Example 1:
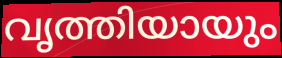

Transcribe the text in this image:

വൃത്തിയായും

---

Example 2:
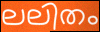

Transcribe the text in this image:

ലലിതം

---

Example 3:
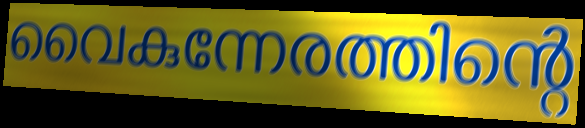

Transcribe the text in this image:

വൈകുന്നേരത്തിന്റെ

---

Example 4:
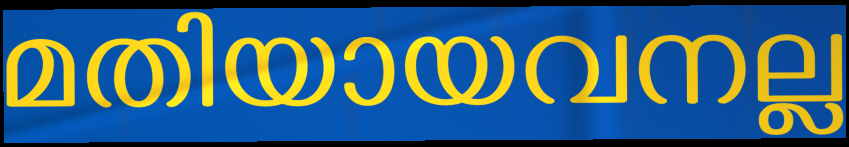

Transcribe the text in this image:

മതിയായവനല്ല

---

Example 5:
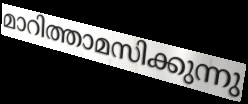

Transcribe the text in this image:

മാറിത്താമസിക്കുന്നു